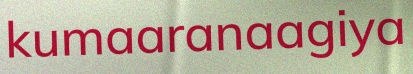
kumaaranaagiya